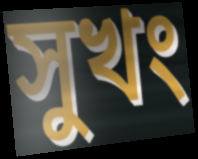
সুখং